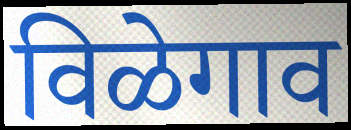
विळेगाव